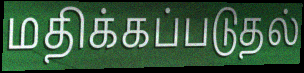
மதிக்கப்படுதல்